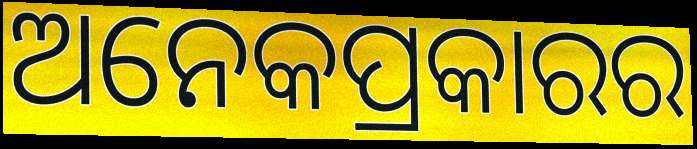
ଅନେକପ୍ରକାରର